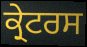
ਕ੍ਰੇਟਰਸ